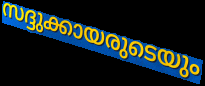
സദ്ദുക്കായരുടെയും